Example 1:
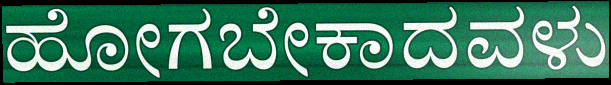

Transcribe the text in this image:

ಹೋಗಬೇಕಾದವಳು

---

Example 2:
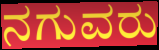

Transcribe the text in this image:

ನಗುವರು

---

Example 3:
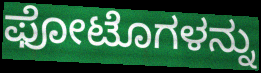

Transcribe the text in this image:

ಫೋಟೊಗಳನ್ನು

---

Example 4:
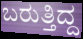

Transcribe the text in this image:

ಬರುತ್ತಿದ್ದ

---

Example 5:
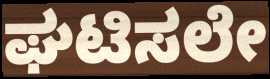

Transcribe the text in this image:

ಘಟಿಸಲೇ